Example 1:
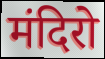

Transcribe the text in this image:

मंदिरो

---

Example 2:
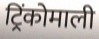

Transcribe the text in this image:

ट्रिंकोमाली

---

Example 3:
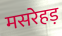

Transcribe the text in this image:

मसरेहड़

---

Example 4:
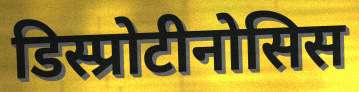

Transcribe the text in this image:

डिस्प्रोटीनोसिस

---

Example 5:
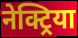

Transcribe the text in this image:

नेक्ट्रिया